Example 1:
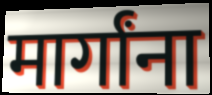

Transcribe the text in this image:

मार्गांना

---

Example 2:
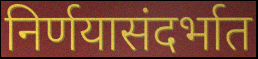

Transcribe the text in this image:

निर्णयासंदर्भात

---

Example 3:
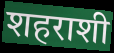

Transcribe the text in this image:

शहराशी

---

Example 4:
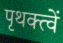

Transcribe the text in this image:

पृथक्त्वें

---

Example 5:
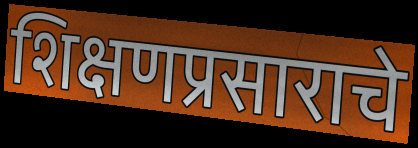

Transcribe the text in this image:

शिक्षणप्रसाराचे